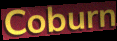
Coburn